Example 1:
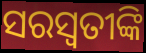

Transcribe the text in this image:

ସରସ୍ୱତୀଙ୍କି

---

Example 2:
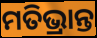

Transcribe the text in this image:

ମତିଭ୍ରାନ୍ତ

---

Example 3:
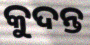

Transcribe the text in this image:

କୁଦନ୍ତ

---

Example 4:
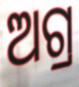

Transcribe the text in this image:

ଅଗ୍ର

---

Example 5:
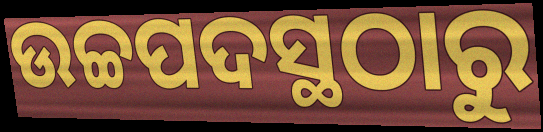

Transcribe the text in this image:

ଉଚ୍ଚପଦସ୍ଥଠାରୁ